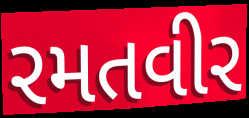
રમતવીર